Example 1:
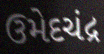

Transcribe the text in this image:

ઉમેદચંદ્ર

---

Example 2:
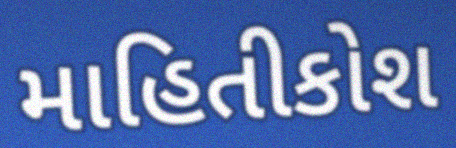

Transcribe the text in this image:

માહિતીકોશ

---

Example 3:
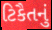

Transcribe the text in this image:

ટિકૈતનું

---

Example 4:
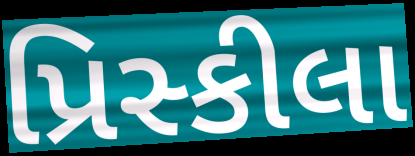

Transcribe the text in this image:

પ્રિસ્કીલા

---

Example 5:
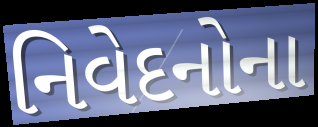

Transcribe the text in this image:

નિવેદનોના